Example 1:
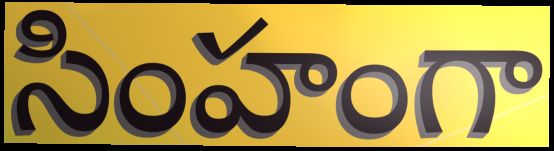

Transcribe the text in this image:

సింహంగా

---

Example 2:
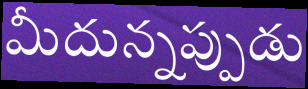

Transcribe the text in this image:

మీదున్నప్పుడు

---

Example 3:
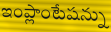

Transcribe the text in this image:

ఇంప్లాంటేషన్ను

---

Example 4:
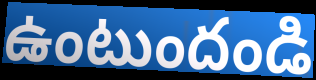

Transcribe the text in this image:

ఉంటుందండి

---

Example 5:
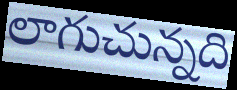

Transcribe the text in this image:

లాగుచున్నది